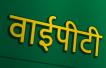
वाईपीटी